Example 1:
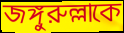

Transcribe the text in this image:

জঙ্গুরুল্লাকে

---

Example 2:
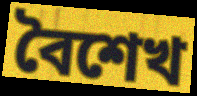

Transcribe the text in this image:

বৈশেখ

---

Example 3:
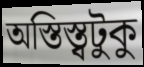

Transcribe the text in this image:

অস্তিস্ত্বটুকু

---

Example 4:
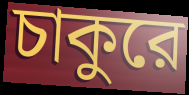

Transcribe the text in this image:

চাকুরে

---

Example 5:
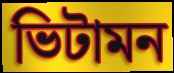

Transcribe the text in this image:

ভিটামন